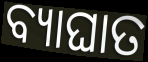
ବ୍ୟାଘାତ